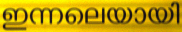
ഇന്നലെയായി